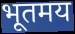
भूतमय